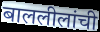
बाललीलांची